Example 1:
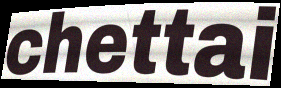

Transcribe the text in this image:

chettai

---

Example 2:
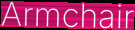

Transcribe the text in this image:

Armchair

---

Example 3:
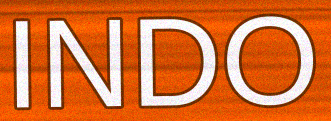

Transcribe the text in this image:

INDO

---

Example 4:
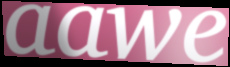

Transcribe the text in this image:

aawe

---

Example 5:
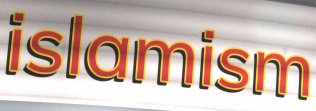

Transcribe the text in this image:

islamism